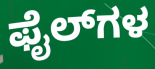
ಫೈಲ್‌ಗಳ